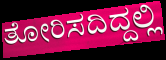
ತೋರಿಸದಿದ್ದಲ್ಲಿ